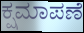
ಕ್ಷಮಾಪಣೆ